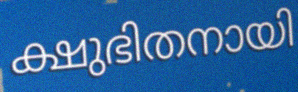
ക്ഷുഭിതനായി